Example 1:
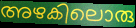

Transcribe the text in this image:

അഴകിലൊരു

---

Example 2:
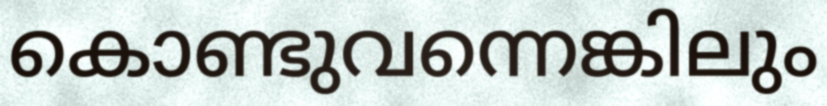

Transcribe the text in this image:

കൊണ്ടുവന്നെങ്കിലും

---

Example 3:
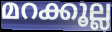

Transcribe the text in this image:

മറക്കൂല്ല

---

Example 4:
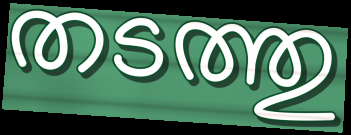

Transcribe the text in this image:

തടത്തു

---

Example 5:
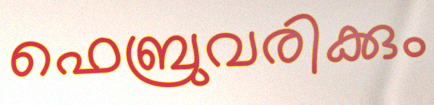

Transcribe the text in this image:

ഫെബ്രുവരിക്കും